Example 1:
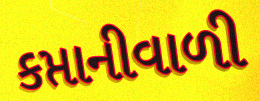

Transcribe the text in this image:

કપ્તાનીવાળી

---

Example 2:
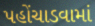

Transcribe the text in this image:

પહોંચાડવામાં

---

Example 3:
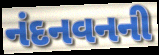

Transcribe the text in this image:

નંદનવનની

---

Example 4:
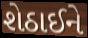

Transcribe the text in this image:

શેઠાઈને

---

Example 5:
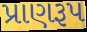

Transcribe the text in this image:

પ્રાણરૂપ